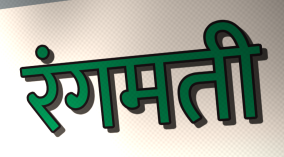
रंगमती